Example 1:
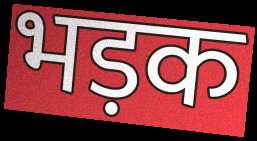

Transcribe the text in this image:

भड़क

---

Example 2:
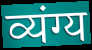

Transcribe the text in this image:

व्यंग्य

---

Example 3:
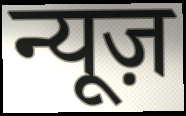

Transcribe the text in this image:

न्यूज़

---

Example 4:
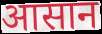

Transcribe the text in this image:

आसान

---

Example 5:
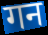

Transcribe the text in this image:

गन